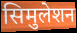
सिमुलेशन